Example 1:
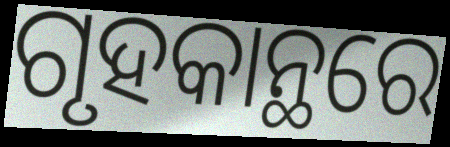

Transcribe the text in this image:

ଗୃହକାନ୍ଥରେ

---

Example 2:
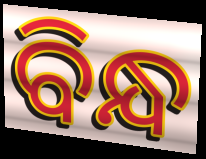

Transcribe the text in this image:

ବିନ୍ଧ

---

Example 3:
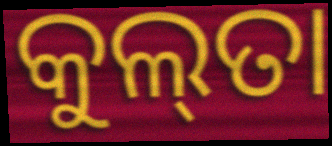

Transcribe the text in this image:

କୁଲ୍‌ତା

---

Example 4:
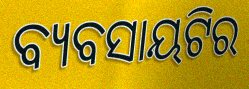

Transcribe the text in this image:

ବ୍ୟବସାୟଟିର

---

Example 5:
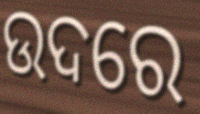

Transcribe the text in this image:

ଉଦରେ